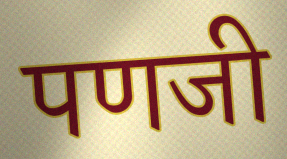
पणजी